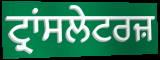
ਟ੍ਰਾਂਸਲੇਟਰਜ਼